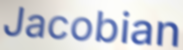
Jacobian